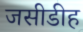
जसीडीह